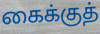
கைக்குத்